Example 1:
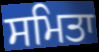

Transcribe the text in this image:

ਸਮਿਤਾ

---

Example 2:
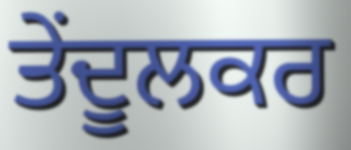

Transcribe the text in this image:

ਤੇਂਦੂਲਕਰ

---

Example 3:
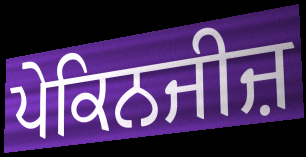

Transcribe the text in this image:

ਪੇਕਿਨਜੀਜ਼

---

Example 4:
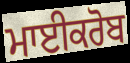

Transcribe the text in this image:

ਮਾਈਕਰੋਬ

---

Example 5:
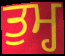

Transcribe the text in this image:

ਤੁਮ੍ਹ੍ਹ